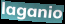
laganio